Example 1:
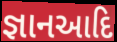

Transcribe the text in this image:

જ્ઞાનઆદિ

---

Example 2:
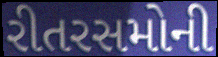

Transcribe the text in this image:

રીતરસમોની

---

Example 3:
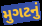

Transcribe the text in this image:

મુગટનું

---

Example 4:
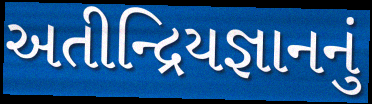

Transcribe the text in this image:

અતીન્દ્રિયજ્ઞાનનું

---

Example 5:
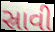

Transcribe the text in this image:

સ્રાવી